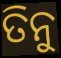
ତିନୁ